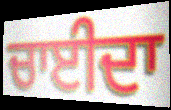
ਚਾਈਦਾ